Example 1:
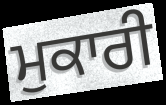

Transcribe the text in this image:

ਮੁਕਾਰੀ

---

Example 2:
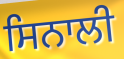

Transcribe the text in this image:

ਸਿਨਾਲੀ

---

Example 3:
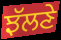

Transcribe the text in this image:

ਝੱਲਣੇ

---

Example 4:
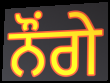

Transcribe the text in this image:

ਨੌਂਗੇ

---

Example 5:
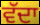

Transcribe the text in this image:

ਵੱਦਾ